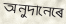
অনুদানেৰে